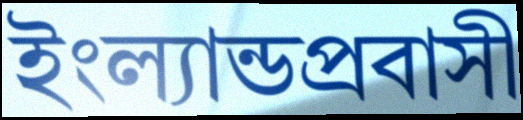
ইংল্যান্ডপ্রবাসী